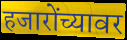
हजारोंच्यावर